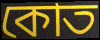
কোত